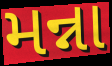
મન્ના